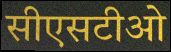
सीएसटीओ